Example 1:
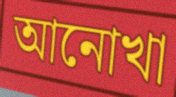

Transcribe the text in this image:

আনোখা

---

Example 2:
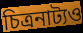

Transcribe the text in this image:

চিত্রনাট্যও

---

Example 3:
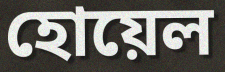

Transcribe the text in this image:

হোয়েল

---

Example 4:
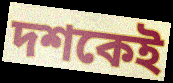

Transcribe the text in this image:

দশকেই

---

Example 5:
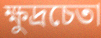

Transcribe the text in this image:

ক্ষুদ্রচেতা